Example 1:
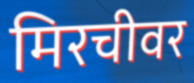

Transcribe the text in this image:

मिरचीवर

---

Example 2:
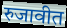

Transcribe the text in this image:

रुजावीत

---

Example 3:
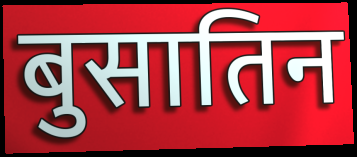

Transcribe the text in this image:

बुसातिन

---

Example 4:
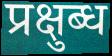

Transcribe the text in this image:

प्रक्षुब्ध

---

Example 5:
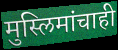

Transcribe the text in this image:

मुस्लिमांचाही